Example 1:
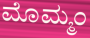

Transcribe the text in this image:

ಮೊಮ್ಮಂ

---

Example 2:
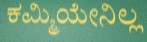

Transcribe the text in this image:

ಕಮ್ಮಿಯೇನಿಲ್ಲ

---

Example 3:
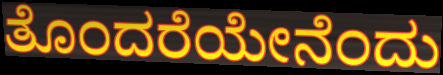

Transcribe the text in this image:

ತೊಂದರೆಯೇನೆಂದು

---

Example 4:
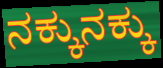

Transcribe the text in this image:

ನಕ್ಕುನಕ್ಕು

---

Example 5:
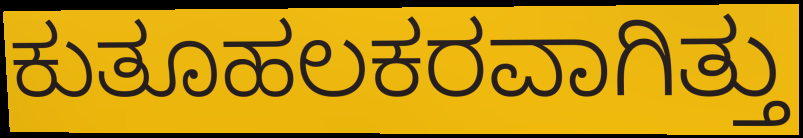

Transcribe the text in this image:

ಕುತೂಹಲಕರವಾಗಿತ್ತು